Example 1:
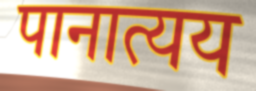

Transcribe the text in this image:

पानात्यय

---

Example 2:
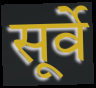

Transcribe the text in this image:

सूर्वे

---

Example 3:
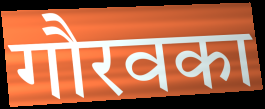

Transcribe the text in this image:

गौरवका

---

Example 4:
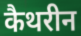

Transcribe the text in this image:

कैथरीन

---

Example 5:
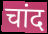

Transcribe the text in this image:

चांद